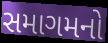
સમાગમનો